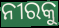
ନୀରକୁ